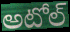
అటోల్